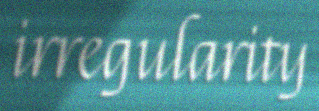
irregularity